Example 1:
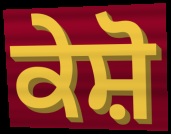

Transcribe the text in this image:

ਕੇਸ਼ੋ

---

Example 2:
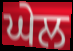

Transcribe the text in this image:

ਘੇਲ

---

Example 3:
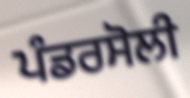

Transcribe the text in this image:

ਪੰਡਰਸੋਲੀ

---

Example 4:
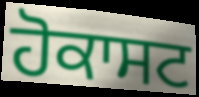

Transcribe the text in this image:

ਹੋਕਾਸਟ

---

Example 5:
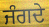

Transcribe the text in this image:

ਜੰਗਦੇ